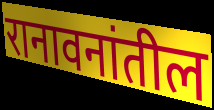
रानावनांतील